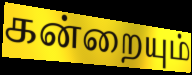
கன்றையும்